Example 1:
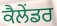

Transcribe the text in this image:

ਕੈਲੇਂਡਰ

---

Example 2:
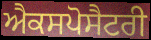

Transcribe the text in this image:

ਐਕਸਪੋਸੈਟਰੀ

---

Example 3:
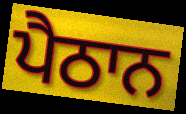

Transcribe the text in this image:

ਪੈਠਾਨ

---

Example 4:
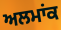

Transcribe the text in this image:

ਅਲਮਾਂਕ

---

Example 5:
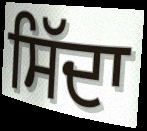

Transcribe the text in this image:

ਸਿੱਦਾ